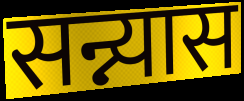
सन्न्यास